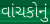
વાંચકોનું